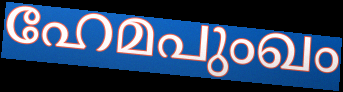
ഹേമപുംഖം